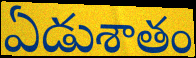
ఏడుశాతం